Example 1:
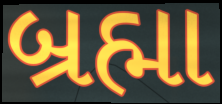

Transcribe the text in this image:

બ્રહ્મા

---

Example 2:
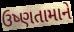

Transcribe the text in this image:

ઉષ્ણતામાને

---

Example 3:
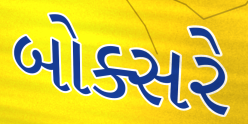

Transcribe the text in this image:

બોક્સરે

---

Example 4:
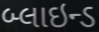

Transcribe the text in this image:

બ્લાઇન્ડ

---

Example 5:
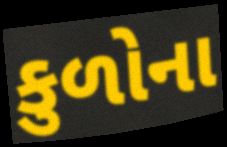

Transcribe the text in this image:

કુળોના